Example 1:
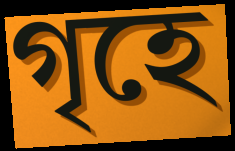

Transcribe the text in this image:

গৃহে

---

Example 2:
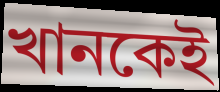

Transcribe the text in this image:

খানকেই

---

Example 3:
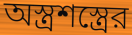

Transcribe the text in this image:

অস্ত্রশস্ত্রের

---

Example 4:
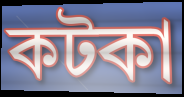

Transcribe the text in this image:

কটকা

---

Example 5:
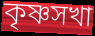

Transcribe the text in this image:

কৃষ্ণসখা